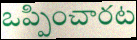
ఒప్పించారట